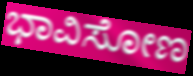
ಭಾವಿಸೋಣ